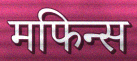
मफिन्स